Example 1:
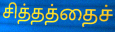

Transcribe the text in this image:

சித்தத்தைச்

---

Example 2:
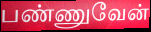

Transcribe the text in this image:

பண்ணுவேன்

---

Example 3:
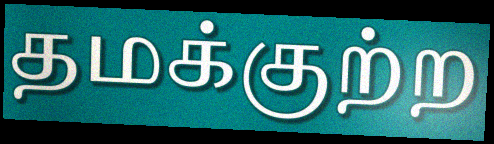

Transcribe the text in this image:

தமக்குற்ற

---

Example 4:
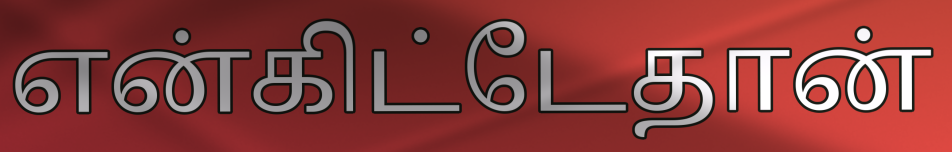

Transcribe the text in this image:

என்கிட்டேதான்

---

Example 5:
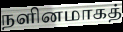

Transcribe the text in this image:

நளினமாகத்